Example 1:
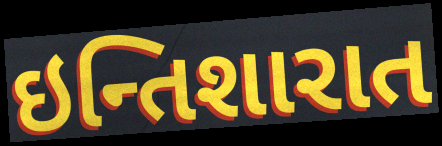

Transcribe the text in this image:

ઇન્તિશારાત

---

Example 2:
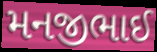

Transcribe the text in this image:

મનજીભાઈ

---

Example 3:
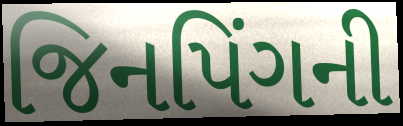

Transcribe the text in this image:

જિનપિંગની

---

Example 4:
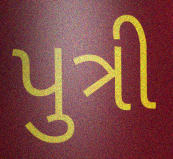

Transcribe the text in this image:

પુત્રી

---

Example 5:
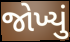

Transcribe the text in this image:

જોખ્યું